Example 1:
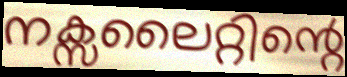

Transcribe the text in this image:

നക്സലൈറ്റിന്റെ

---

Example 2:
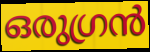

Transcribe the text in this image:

ഒരുഗ്രൻ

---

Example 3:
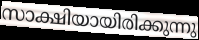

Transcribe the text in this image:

സാക്ഷിയായിരിക്കുന്നു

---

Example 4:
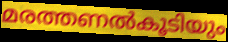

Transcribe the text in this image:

മരത്തണൽകൂടിയും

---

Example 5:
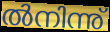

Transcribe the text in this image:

ൽനിന്നു്